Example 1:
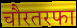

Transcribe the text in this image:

चौरतरफा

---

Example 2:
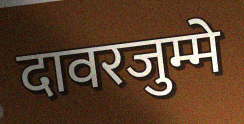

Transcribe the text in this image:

दावरजुम्मे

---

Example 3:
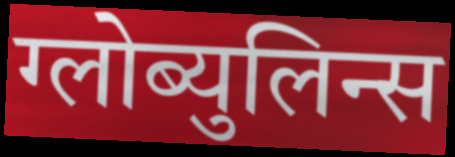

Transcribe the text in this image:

ग्लोब्युलिन्स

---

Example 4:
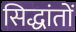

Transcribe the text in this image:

सिद्धांतों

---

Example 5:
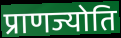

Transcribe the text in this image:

प्राणज्योति